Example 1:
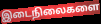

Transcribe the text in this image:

இடைநிலைகளை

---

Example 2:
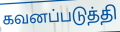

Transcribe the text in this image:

கவனப்படுத்தி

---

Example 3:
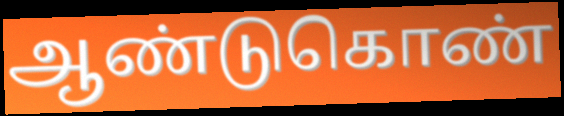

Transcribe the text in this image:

ஆண்டுகொண்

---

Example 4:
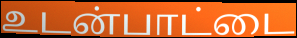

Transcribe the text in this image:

உடன்பாட்டை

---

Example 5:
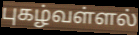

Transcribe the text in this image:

புகழ்வள்ளல்